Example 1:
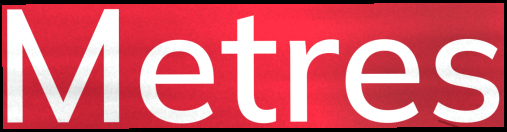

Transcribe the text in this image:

Metres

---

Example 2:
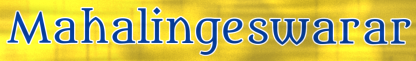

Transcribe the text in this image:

Mahalingeswarar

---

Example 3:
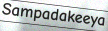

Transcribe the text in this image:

Sampadakeeya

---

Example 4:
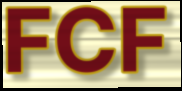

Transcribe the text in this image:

FCF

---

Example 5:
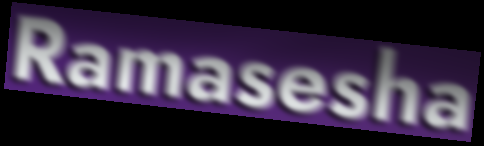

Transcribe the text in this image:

Ramasesha